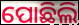
ପୋଛିଲି